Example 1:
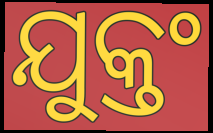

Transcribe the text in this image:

ଯୁକ୍ତଂ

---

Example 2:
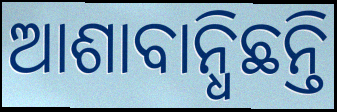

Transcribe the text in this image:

ଆଶାବାନ୍ଧିଛନ୍ତି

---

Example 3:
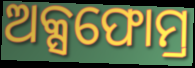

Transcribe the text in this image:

ଅକ୍ସଫୋମ୍ର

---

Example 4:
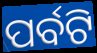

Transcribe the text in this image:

ପର୍ବଟି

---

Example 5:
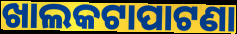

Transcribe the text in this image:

ଖାଲକଟାପାଟଣା